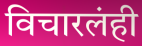
विचारलंही